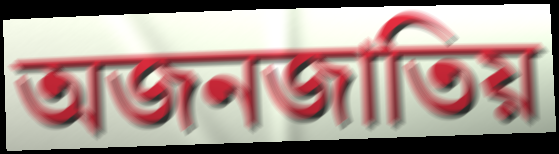
অজনজাতিয়